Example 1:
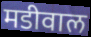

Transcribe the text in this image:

मडीवाल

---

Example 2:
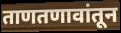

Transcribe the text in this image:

ताणतणावांतून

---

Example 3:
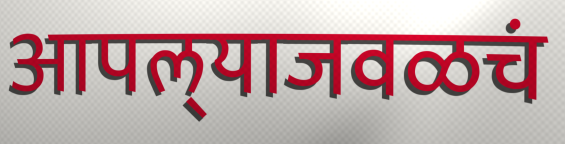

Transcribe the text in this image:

आपल्याजवळचं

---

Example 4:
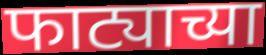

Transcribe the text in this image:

फाट्याच्या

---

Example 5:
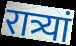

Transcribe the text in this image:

रात्र्यां